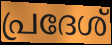
പ്രദേശ്